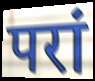
परां